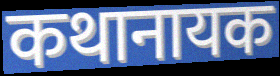
कथानायक